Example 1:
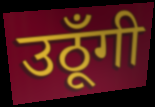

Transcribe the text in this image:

उठूँगी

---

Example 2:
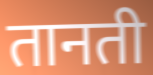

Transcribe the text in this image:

तानती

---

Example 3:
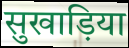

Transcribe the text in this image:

सुखाड़िया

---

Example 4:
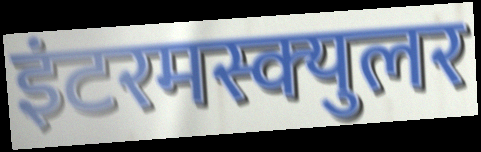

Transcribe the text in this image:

इंटरमस्क्युलर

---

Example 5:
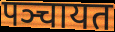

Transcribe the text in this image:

पञ्चायत